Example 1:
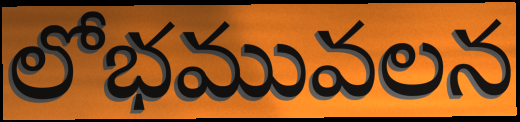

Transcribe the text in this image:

లోభమువలన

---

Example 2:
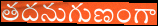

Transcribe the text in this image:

తదనుగుణంగా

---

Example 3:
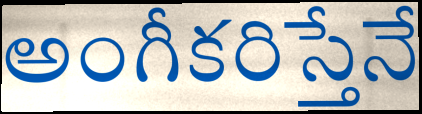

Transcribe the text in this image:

అంగీకరిస్తేనే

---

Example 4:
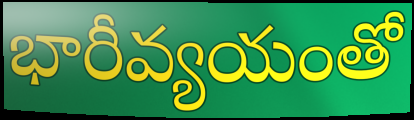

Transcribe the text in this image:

భారీవ్యయంతో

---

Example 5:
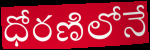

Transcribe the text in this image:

ధోరణిలోనే